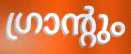
ഗ്രാന്റും